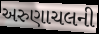
અરુણાચલની